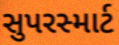
સુપરસ્માર્ટ